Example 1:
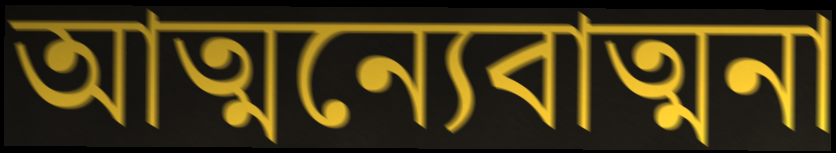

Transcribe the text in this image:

আত্মন্যেবাত্মনা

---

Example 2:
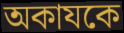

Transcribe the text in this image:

অকাযকে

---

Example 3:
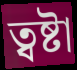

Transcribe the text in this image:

ত্বষ্টা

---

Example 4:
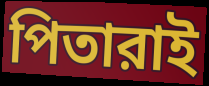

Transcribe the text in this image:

পিতারাই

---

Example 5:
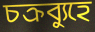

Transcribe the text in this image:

চক্রব্যুহে